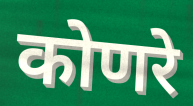
कोणरे